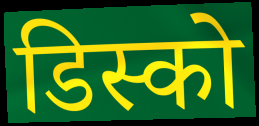
डिस्को